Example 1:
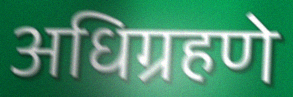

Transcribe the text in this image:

अधिग्रहणे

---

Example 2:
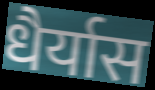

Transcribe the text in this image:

धैर्यास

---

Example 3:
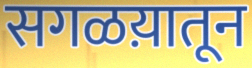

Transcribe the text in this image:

सगळय़ातून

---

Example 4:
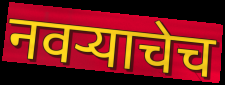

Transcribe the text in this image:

नवऱ्याचेच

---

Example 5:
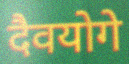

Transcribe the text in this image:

दैवयोगे